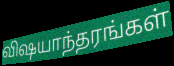
விஷயாந்தரங்கள்